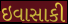
ઇવાસાકી